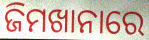
ଜିମଖାନାରେ